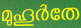
മുഹൂർതേ